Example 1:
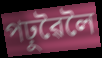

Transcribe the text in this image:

পঢ়ুৱৈলৈ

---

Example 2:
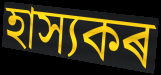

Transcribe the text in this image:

হাস্যকৰ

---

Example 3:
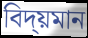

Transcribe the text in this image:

বিদ্য়মান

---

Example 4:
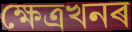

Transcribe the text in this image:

ক্ষেত্ৰখনৰ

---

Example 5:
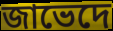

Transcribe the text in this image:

জাভেদে